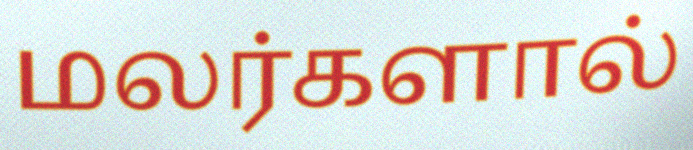
மலர்களால்